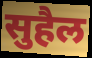
सुहैल